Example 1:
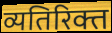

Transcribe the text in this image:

व्यतिरिक्त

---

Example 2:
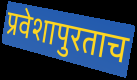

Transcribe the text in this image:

प्रवेशापुरताच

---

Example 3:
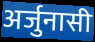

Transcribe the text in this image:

अर्जुनासी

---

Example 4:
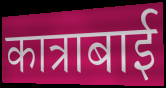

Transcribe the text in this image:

कात्राबाई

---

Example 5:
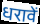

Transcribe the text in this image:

धरावें